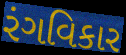
રંગવિકાર